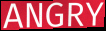
ANGRY